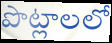
పొట్లాలలో